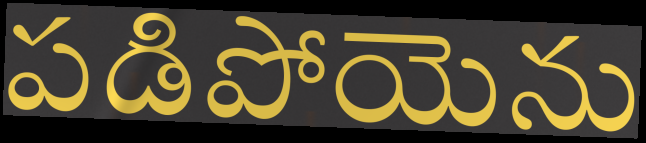
పడిపోయెను